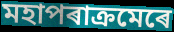
মহাপৰাক্ৰমেৰে